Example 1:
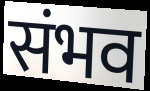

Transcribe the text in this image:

संभव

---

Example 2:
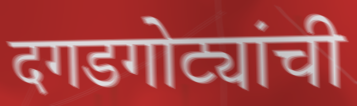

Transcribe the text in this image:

दगडगोट्यांची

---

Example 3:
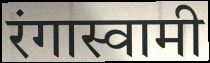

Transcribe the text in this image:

रंगास्वामी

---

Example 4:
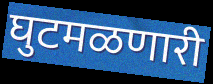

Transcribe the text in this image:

घुटमळणारी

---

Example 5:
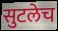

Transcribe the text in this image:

सुटलेच